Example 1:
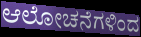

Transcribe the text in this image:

ಆಲೋಚನೆಗಳಿಂದ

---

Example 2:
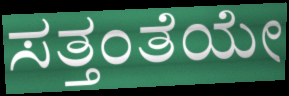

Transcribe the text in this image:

ಸತ್ತಂತೆಯೇ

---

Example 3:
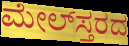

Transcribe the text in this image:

ಮೇಲ್‌ಸ್ತರದ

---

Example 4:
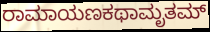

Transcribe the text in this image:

ರಾಮಾಯಣಕಥಾಮೃತಮ್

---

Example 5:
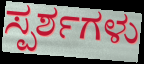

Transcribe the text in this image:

ಸ್ಪರ್ಶಗಳು